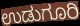
ಉಡುಗೂರಿ